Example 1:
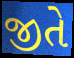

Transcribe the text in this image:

જીતે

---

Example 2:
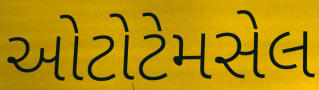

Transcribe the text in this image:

ઓટોટેમસેલ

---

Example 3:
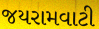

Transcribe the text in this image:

જયરામવાટી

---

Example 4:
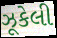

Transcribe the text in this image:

ઝૂકેલી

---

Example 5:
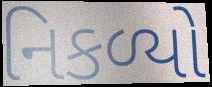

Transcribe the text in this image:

નિકળ્યો